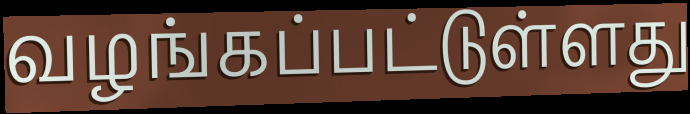
வழங்கப்பட்டுள்ளது